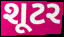
શૂટર